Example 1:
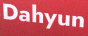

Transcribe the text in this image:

Dahyun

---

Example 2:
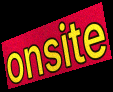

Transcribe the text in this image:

onsite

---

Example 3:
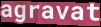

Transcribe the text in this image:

agravat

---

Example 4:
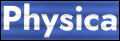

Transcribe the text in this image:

Physica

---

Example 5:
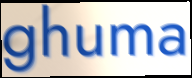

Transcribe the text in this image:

ghuma